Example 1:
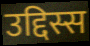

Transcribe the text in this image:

उद्दिस्स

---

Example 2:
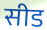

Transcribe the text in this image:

सीड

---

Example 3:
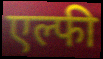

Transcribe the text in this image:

एल्फी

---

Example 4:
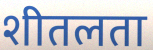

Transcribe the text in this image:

शीतलता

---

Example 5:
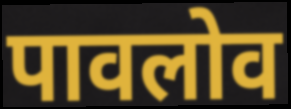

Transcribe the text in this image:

पावलोव